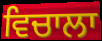
ਵਿਚਾਲਾ